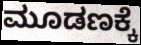
ಮೂಡಣಕ್ಕೆ